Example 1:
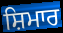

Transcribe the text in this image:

ਸ਼ਿਮਾਰ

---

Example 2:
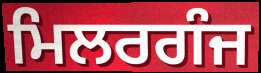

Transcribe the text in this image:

ਮਿਲਰਗੰਜ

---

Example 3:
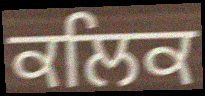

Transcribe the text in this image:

ਕਲਿਕ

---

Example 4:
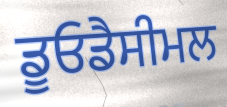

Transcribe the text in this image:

ਡੂਓਡੈਸੀਮਲ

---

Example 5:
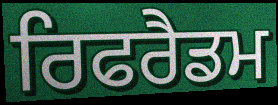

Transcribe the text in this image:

ਰਿਫਰੈਡਮ